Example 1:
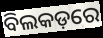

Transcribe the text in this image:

ବିଲକଡ଼ରେ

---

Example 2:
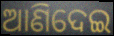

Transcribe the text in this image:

ଆଣିଦେଇ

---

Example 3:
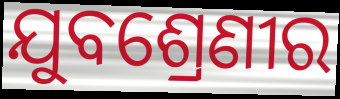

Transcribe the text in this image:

ଯୁବଶ୍ରେଣୀର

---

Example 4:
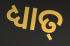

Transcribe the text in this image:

ଧ୍ୟାତ୍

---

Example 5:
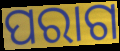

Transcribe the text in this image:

ପରାଗ